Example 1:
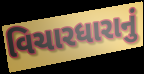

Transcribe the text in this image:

વિચારધારાનું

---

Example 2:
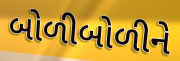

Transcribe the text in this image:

બોળીબોળીને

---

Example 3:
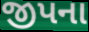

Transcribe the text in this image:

જીપના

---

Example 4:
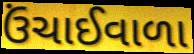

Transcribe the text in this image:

ઉંચાઈવાળા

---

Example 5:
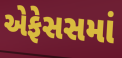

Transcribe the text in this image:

એફેસસમાં